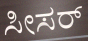
ಸೀಸರ್